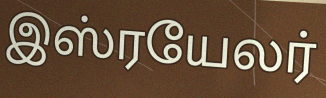
இஸ்ரயேலர்